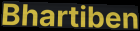
Bhartiben